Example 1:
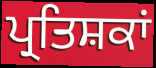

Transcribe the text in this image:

ਪ੍ਰਤਿਸ਼ਕਾਂ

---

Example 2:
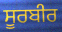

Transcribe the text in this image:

ਸੂਰਬੀਰ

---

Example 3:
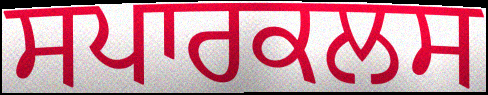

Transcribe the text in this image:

ਸਪਾਰਕਲਸ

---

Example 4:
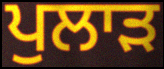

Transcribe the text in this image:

ਪੁਲਾੜ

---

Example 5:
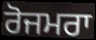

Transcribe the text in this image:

ਰੋਜਮਰਾ